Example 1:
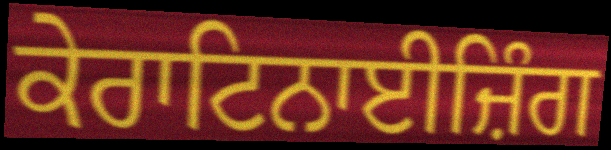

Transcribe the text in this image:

ਕੇਰਾਟਿਨਾਈਜ਼ਿੰਗ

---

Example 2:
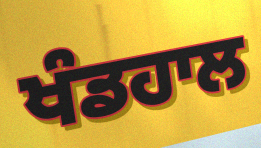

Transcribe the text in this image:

ਖੰਡਹਾਲ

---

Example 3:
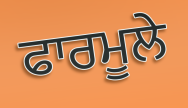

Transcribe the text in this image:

ਫਾਰਮੂਲੇ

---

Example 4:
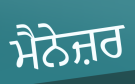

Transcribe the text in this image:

ਮੈਨੇਜ਼ਰ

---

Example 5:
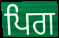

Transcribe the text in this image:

ਪਿਗ